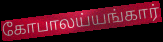
கோபாலய்யங்கார்